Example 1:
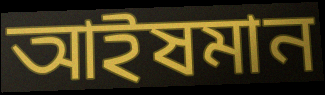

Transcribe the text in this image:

আইষমান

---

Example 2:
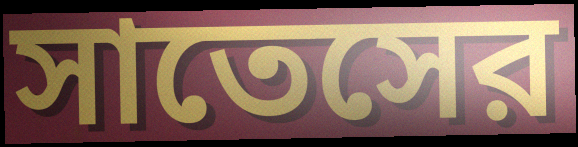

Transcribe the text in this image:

সাতেসের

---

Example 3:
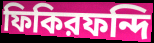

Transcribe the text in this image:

ফিকিরফন্দি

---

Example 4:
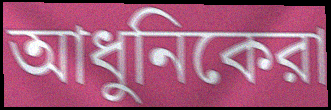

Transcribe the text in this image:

আধুনিকেরা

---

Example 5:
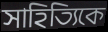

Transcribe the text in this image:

সাহিত্যিকে